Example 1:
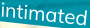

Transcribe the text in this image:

intimated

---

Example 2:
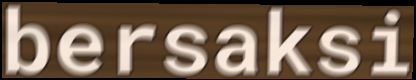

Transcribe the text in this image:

bersaksi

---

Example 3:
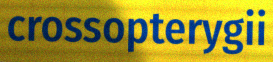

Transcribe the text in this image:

crossopterygii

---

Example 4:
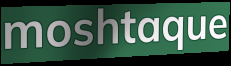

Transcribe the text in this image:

moshtaque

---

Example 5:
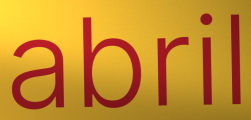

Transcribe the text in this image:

abril